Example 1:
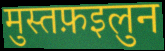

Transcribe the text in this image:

मुस्तफ़इलुन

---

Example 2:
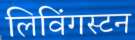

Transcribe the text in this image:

लिविंगस्टन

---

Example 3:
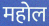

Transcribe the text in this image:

महोल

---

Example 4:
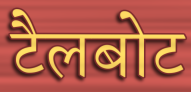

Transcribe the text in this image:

टैलबोट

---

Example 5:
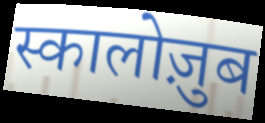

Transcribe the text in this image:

स्कालोज़ुब